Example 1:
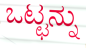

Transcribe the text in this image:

ಒಟ್ಟನ್ನು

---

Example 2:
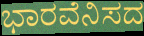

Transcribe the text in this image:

ಭಾರವೆನಿಸದ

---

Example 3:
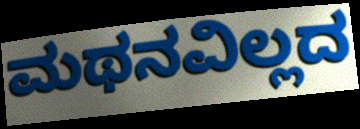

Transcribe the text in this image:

ಮಥನವಿಲ್ಲದ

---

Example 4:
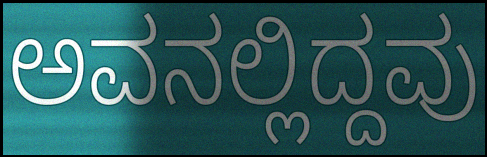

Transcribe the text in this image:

ಅವನಲ್ಲಿದ್ದವು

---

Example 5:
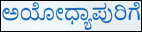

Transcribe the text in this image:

ಅಯೋಧ್ಯಾಪುರಿಗೆ